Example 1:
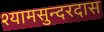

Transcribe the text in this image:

श्यामसुन्दरदास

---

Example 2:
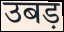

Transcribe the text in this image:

उबड़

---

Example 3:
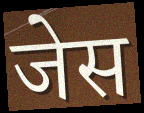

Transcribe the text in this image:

जेस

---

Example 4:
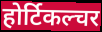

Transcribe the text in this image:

होर्टिकल्चर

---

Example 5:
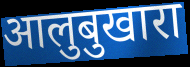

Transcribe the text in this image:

आलुबुखारा